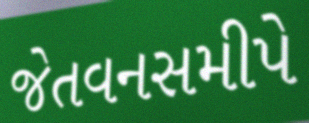
જેતવનસમીપે